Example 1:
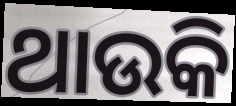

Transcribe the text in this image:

ଥାଉକି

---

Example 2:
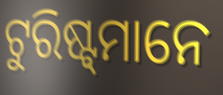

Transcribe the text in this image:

ଟୁରିଷ୍ଟ୍‍ମାନେ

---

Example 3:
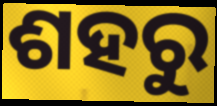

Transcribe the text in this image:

ଶହରୁ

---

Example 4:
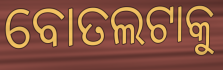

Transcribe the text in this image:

ବୋତଲଟାକୁ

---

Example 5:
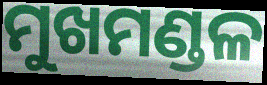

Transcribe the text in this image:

ମୁଖମଣ୍ଡଳ